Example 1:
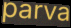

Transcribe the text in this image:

parva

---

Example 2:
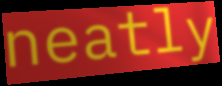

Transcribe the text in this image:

neatly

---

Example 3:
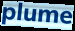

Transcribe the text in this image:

plume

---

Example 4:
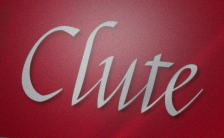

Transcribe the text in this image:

Clute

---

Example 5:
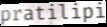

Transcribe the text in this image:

pratilipi